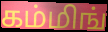
கம்மிங்